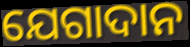
ଯେଗାଦାନ